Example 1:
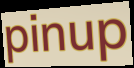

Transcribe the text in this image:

pinup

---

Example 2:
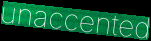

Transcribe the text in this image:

unaccented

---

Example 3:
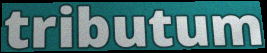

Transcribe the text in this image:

tributum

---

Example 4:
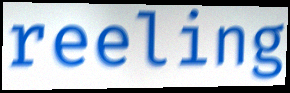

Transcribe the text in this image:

reeling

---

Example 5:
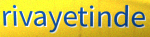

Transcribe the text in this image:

rivayetinde